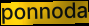
ponnoda